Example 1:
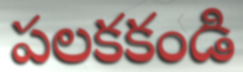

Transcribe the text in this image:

పలకకండి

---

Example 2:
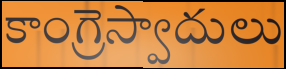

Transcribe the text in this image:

కాంగ్రెస్వాదులు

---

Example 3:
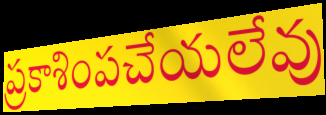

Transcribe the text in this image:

ప్రకాశింపచేయలేవు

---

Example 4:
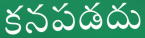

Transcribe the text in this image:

కనపడదు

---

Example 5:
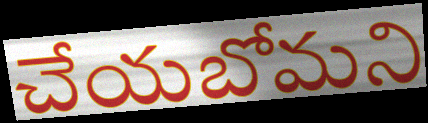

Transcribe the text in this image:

చేయబోమని